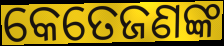
କେତେଜଣଙ୍କ